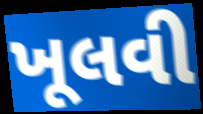
ખૂલવી